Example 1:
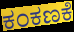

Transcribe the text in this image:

ಕಂಕಣಕೆ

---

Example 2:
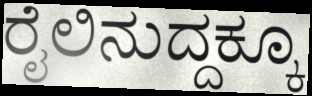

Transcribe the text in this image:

ರೈಲಿನುದ್ದಕ್ಕೂ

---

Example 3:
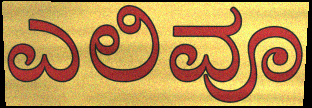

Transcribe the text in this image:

ಎಲಿವೂ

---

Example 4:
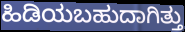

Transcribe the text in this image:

ಹಿಡಿಯಬಹುದಾಗಿತ್ತು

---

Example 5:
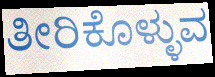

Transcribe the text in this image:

ತೀರಿಕೊಳ್ಳುವ